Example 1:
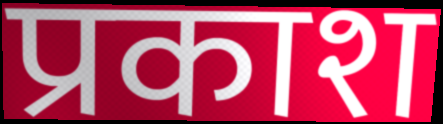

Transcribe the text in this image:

प्रकाश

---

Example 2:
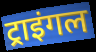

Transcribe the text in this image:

ट्राइंगल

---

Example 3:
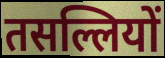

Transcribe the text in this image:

तसल्लियों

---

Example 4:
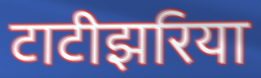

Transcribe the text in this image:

टाटीझरिया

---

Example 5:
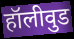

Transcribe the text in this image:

हॉलीवुड